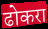
ढोकरा